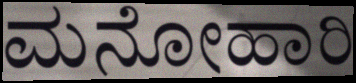
ಮನೋಹಾರಿ